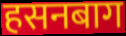
हसनबाग